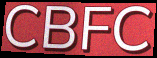
CBFC